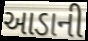
આડાની